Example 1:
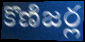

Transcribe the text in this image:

కొణిజర్ల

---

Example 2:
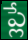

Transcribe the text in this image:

ప్లే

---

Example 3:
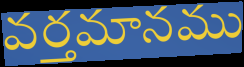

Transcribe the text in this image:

వర్తమానము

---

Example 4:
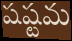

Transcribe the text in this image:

షష్టమ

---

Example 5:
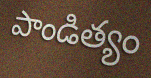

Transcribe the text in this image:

పాండిత్యం